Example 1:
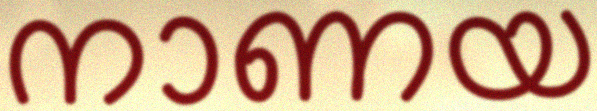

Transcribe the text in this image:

നാണയ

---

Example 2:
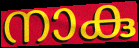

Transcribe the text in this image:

നാകു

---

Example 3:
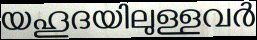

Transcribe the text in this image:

യഹൂദയിലുള്ളവർ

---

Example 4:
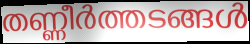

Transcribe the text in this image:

തണ്ണീർത്തടങ്ങൾ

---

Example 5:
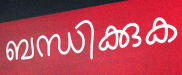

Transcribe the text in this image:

ബന്ധിക്കുക